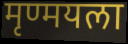
मृण्मयला